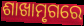
ଶାଖାମୃଗରେ